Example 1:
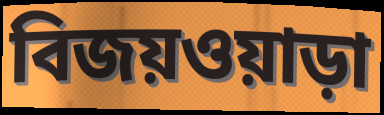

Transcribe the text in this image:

বিজয়ওয়াড়া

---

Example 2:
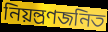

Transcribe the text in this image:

নিয়ন্ত্রণজনিত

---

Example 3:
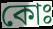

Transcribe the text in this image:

কোঃ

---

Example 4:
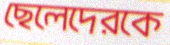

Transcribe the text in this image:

ছেলেদেরকে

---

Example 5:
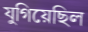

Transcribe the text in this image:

যুগিয়েছিল